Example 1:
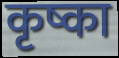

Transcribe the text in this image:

कृष्का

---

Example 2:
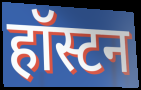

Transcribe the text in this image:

हॉस्टन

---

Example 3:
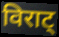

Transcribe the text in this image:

विराट्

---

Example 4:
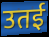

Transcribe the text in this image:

उतई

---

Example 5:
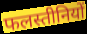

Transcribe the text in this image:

फलस्तीनियों